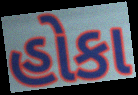
હોકા